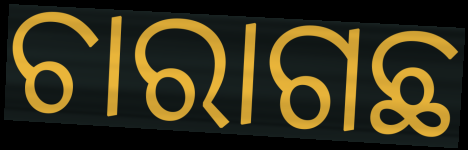
ଚାରାଗଛ